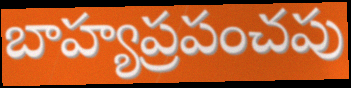
బాహ్యప్రపంచపు